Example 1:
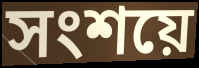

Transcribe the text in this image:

সংশয়ে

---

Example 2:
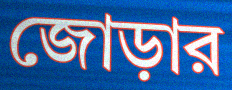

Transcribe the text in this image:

জোড়ার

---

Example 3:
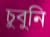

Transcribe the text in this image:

চুবুনি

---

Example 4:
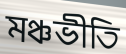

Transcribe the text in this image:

মঞ্চভীতি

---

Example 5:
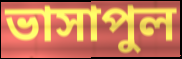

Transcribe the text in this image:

ভাসাপুল